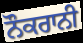
ਨੌਕਰਾਨੀ